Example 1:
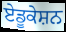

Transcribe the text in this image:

ਏਡੂਕੇਸ਼ਨ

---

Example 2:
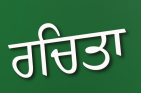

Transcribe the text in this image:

ਰਚਿਤਾ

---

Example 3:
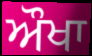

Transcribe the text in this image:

ਔਖਾ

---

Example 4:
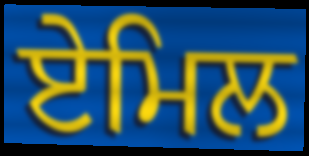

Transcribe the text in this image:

ਏਮਿਲ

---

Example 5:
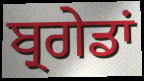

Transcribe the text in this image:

ਬ੍ਰਗੇਡਾਂ